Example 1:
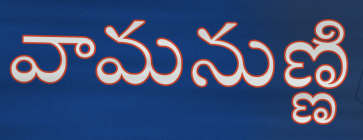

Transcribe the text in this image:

వామనుణ్ణి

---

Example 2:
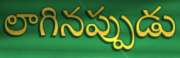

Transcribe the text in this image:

లాగినప్పుడు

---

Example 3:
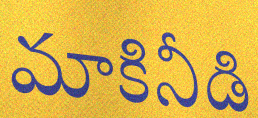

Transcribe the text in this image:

మాకినీడి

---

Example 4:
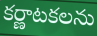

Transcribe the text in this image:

కర్ణాటకలను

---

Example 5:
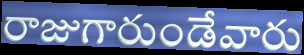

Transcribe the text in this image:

రాజుగారుండేవారు